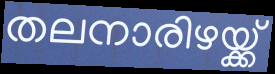
തലനാരിഴയ്ക്ക്